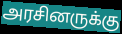
அரசினருக்கு